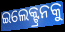
ଇଲେକ୍ଟ୍ରନକୁ